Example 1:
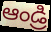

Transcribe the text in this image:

ఆండ్రి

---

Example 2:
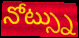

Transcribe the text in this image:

నోట్స్ను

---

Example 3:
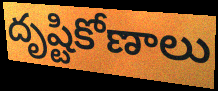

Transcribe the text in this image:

దృష్టికోణాలు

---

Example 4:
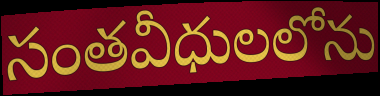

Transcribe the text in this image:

సంతవీధులలోను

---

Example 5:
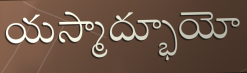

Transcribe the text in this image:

యస్మాద్భూయో